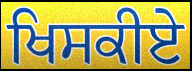
ਖਿਸਕੀਏ